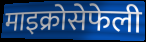
माइक्रोसेफेली